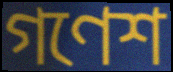
গণেশ